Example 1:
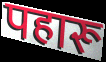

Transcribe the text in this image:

पहारू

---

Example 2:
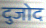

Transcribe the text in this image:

दुजोद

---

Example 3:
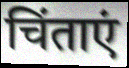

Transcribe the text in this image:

चिंताएं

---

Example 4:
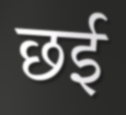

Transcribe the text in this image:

छई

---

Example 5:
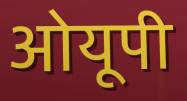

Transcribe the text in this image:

ओयूपी